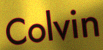
Colvin